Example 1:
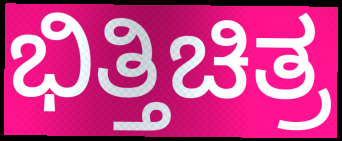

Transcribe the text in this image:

ಭಿತ್ತಿಚಿತ್ರ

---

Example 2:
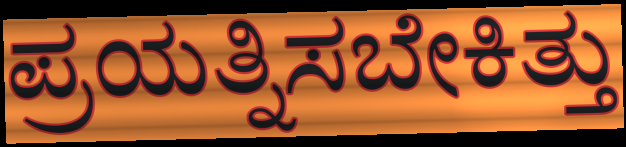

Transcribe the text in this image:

ಪ್ರಯತ್ನಿಸಬೇಕಿತ್ತು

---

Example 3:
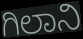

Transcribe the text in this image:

ಗಿಲಾನಿ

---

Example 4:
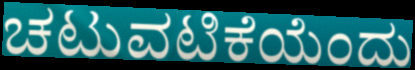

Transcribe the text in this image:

ಚಟುವಟಿಕೆಯೆಂದು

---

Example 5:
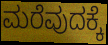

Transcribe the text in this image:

ಮರೆವುದಕ್ಕೆ